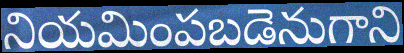
నియమింపబడెనుగాని